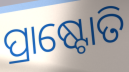
ପ୍ରାଷ୍ଟୋତି